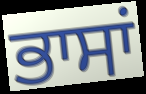
ਭਾਸਾਂ